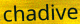
chadive